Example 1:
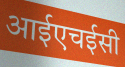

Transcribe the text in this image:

आईएचईसी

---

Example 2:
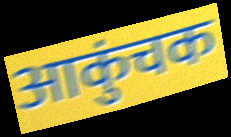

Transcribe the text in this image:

आकुंचक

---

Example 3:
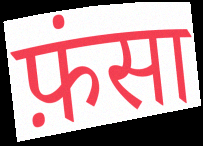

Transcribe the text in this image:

फ़ंसा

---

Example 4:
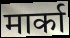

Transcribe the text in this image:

मार्का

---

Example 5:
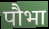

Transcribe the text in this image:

पौभा